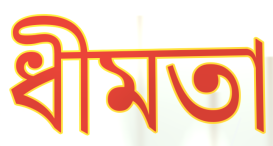
ধীমতা